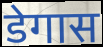
डेगास